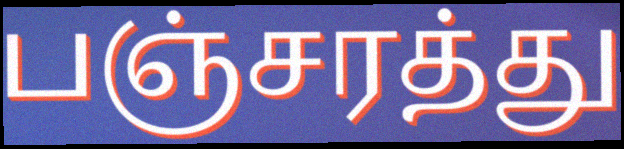
பஞ்சரத்து